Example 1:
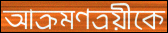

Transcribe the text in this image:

আক্রমণত্রয়ীকে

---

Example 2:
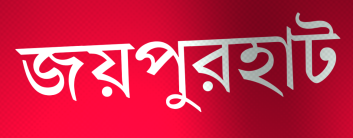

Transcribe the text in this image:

জয়পুরহাট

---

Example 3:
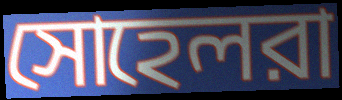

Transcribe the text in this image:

সোহেলরা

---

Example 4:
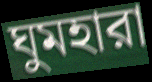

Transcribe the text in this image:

ঘুমহারা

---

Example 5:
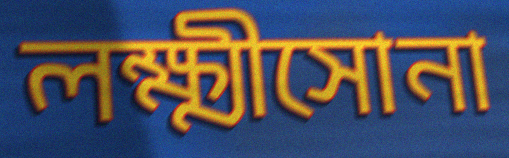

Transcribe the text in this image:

লক্ষ্মীসোনা